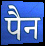
पैन